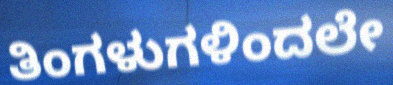
ತಿಂಗಳುಗಳಿಂದಲೇ